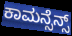
ಕಾಮನ್ಸೆನ್ಸ್